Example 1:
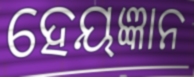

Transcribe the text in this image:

ହେୟଜ୍ଞାନ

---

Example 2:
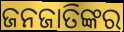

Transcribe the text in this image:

ଜନଜାତିଙ୍କର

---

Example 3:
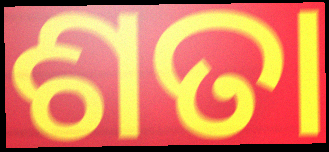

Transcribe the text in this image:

ଶତା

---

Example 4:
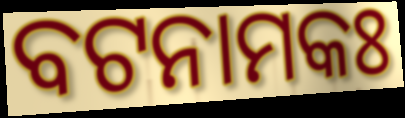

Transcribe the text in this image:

ବଟନାମକଃ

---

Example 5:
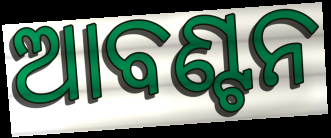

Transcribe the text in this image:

ଆବଣ୍ଟନ